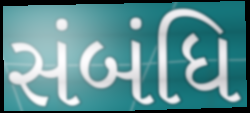
સંબંધિ